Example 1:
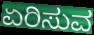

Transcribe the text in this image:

ಏರಿಸುವ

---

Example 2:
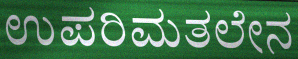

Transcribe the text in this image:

ಉಪರಿಮತಲೇನ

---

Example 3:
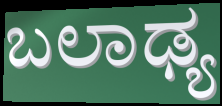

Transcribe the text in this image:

ಬಲಾಢ್ಯ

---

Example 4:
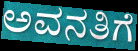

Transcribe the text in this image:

ಅವನತಿಗೆ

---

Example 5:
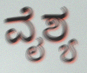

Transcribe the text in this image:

ವೈಶ್ಯ